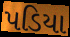
પડિયા